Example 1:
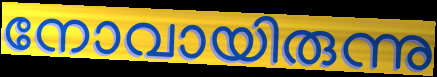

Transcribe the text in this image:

നോവായിരുന്നു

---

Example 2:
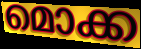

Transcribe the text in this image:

മൊക്ക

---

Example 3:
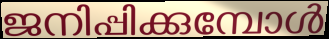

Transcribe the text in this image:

ജനിപ്പിക്കുമ്പോൾ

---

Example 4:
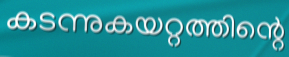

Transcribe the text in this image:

കടന്നുകയറ്റത്തിന്റെ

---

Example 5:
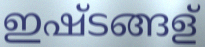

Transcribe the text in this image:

ഇഷ്ടങ്ങള്